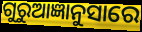
ଗୁରୁଆଜ୍ଞାନୁସାରେ